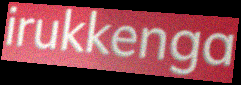
irukkenga